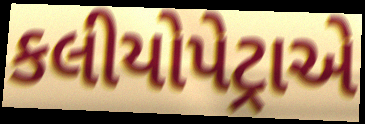
કલીયોપેટ્રાએ